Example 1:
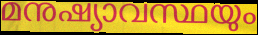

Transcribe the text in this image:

മനുഷ്യാവസ്ഥയും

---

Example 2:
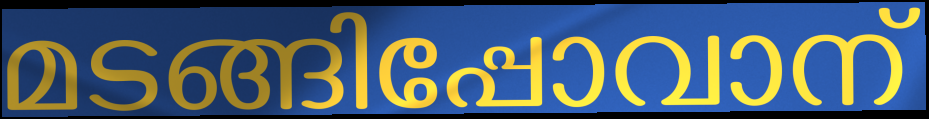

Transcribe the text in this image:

മടങ്ങിപ്പോവാന്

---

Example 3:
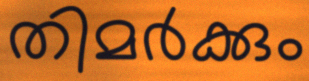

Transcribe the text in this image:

തിമർക്കും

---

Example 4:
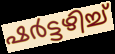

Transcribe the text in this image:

ഷർട്ടഴിച്ച്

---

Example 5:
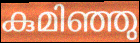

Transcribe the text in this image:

കുമിഞ്ഞു